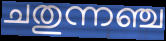
ചതുന്നഞ്ച